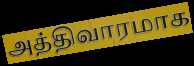
அத்திவாரமாக